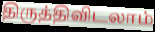
திருத்திவிடலாம்